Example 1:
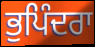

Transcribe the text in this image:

ਭੁਪਿੰਦਰਾ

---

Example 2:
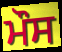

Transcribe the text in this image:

ਮੌਸ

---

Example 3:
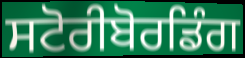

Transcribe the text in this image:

ਸਟੋਰੀਬੋਰਡਿੰਗ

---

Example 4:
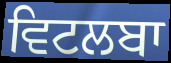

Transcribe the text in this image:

ਵਿਟਲਬਾ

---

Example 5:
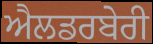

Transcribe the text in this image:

ਐਲਡਰਬੇਰੀ